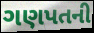
ગણપતની